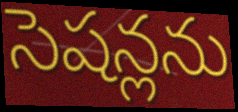
సెషన్లను